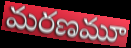
మరణమూ